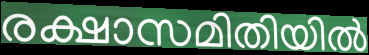
രക്ഷാസമിതിയിൽ